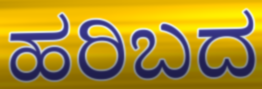
ಹರಿಬದ